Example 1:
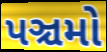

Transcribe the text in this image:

પઞ્ચમો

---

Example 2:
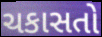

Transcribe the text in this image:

ચકાસતો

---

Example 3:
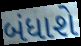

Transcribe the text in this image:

બંધાશે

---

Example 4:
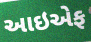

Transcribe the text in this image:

આઇએફ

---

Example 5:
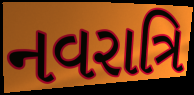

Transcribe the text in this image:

નવરાત્રિ